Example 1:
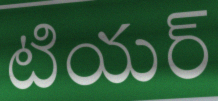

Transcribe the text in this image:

టియర్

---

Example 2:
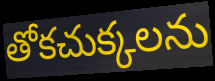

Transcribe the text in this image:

తోకచుక్కలను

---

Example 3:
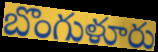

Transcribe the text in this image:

బొంగుళూరు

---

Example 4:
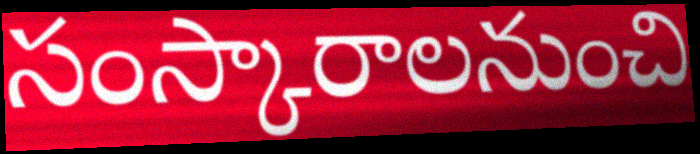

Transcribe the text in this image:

సంస్కారాలనుంచి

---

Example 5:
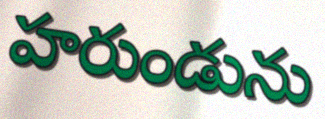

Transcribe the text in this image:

హరుండును